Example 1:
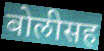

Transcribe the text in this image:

बोलीसह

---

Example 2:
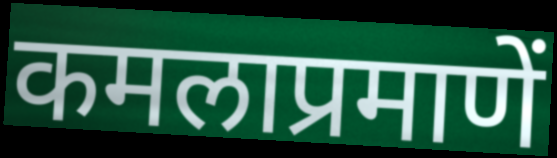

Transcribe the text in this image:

कमलाप्रमाणें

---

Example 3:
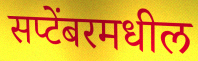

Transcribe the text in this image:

सप्टेंबरमधील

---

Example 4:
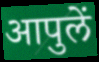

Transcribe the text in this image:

आपुलें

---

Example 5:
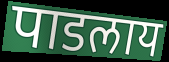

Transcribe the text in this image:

पाडलाय